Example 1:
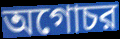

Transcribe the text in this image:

অগোচর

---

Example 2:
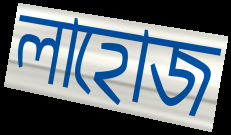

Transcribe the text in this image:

লাহোজ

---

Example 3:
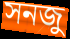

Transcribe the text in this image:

সনজু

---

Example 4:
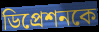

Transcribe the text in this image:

ডিপ্রেশনকে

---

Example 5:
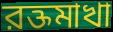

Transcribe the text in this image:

রক্তমাখা